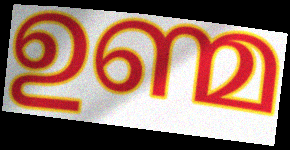
ഉണ്മ